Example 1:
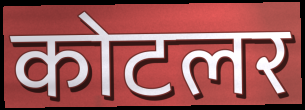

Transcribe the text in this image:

कोटलर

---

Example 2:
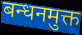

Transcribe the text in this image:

बन्धनमुक्त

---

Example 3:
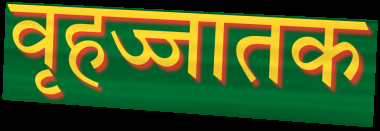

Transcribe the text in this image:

वृहज्जातक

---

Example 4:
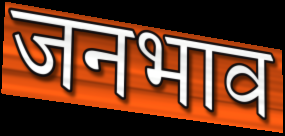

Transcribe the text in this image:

जनभाव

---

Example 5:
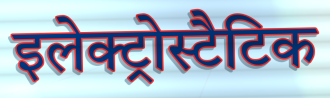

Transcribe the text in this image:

इलेक्ट्रोस्टैटिक